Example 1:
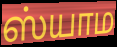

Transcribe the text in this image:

ஸ்யாம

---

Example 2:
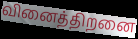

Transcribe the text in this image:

வினைத்திறனை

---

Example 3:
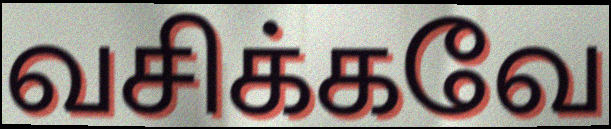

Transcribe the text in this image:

வசிக்கவே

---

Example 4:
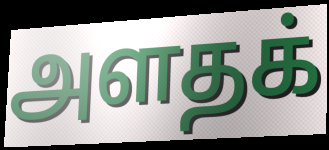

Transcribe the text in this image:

அளதக்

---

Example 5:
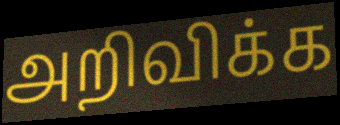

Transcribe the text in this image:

அறிவிக்க